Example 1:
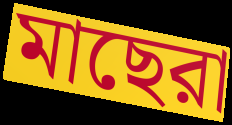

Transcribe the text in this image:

মাছেরা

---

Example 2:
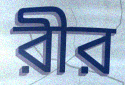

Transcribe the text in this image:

রীর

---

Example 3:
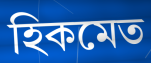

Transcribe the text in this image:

হিকমেত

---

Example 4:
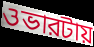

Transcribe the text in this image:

ওভারটায়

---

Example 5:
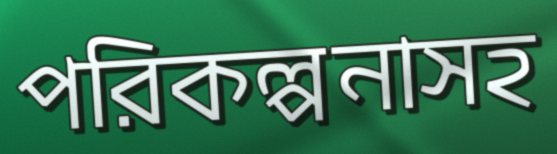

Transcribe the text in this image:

পরিকল্পনাসহ